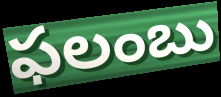
ఫలంబు